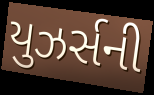
યુઝર્સની